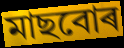
মাছবোৰ